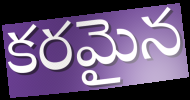
కరమైన